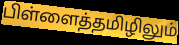
பிள்ளைத்தமிழிலும்